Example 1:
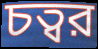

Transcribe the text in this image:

চত্বর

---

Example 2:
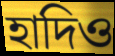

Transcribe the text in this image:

হাদিও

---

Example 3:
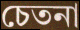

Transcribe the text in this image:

চেতনা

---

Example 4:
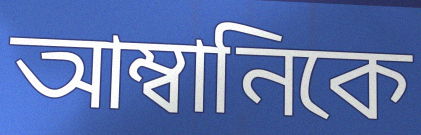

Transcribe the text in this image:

আম্বানিকে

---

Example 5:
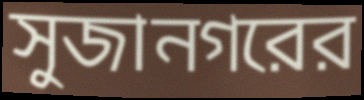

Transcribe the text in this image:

সুজানগরের